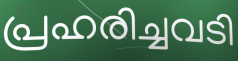
പ്രഹരിച്ചവടി